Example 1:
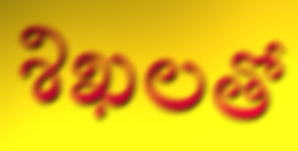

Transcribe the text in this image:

శిఖలతో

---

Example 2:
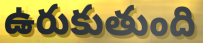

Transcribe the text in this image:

ఉరుకుతుంది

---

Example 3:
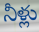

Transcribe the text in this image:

నీళ్లు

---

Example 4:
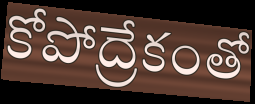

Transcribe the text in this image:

కోపోద్రేకంతో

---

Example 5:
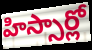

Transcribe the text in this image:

హిస్సార్లో